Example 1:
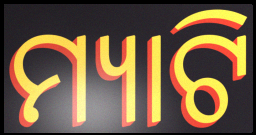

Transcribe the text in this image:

ମ୍ୟାଟି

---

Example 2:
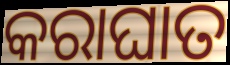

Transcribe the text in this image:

କରାଘାତ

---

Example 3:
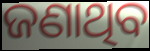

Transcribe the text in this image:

ଜଣାଥିବ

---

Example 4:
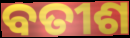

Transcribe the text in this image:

ବତୀଶ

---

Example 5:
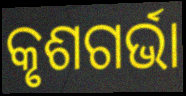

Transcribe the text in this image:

କୃଶଗର୍ଭା